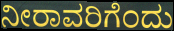
ನೀರಾವರಿಗೆಂದು